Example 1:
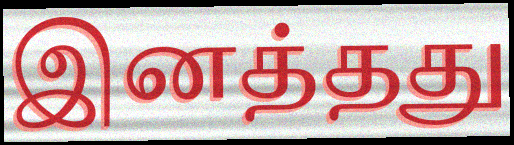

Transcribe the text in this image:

இனத்தது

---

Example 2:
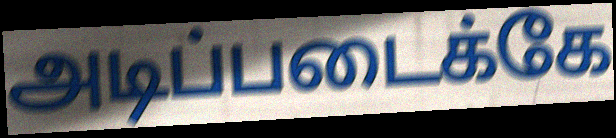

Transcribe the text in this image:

அடிப்படைக்கே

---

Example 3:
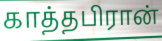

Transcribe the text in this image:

காத்தபிரான்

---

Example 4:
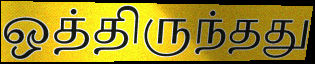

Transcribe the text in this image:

ஒத்திருந்தது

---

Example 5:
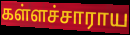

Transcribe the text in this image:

கள்ளச்சாராய